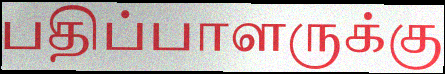
பதிப்பாளருக்கு